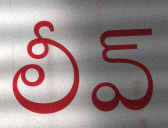
లీవ్